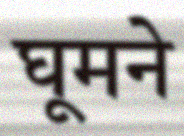
घूमने